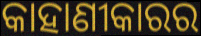
କାହାଣୀକାରର